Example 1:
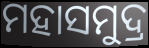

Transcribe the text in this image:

ମହାସମୁଦ୍ର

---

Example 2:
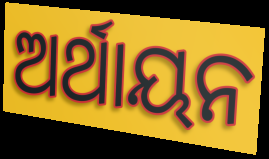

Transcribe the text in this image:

ଅର୍ଥାୟନ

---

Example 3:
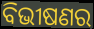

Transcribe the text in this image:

ବିଭୀଷଣର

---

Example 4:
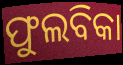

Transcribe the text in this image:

ଫୁଲବିକା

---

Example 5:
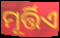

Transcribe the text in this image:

ମୂର୍ତ୍ତିଏ